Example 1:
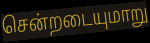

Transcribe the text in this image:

சென்றடையுமாறு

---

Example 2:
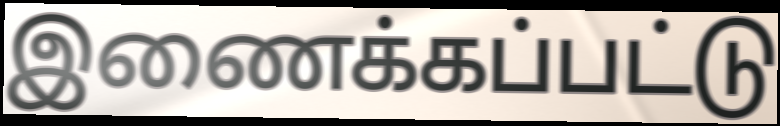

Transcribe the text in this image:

இணைக்கப்பட்டு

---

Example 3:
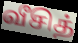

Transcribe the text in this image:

வீசித்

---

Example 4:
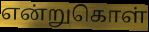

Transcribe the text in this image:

என்றுகொள்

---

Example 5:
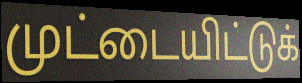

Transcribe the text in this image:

முட்டையிட்டுக்